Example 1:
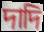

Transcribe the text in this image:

দাদি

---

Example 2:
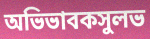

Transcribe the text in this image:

অভিভাবকসুলভ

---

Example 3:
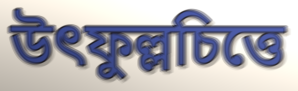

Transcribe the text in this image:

উৎফুল্লচিত্তে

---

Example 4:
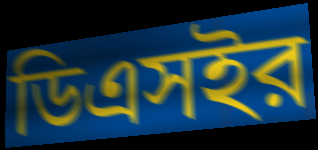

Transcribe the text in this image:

ডিএসইর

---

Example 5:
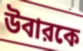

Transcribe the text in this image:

উবারকে